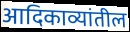
आदिकाव्यांतील